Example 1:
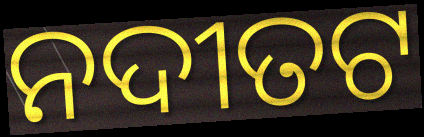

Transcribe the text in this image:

ନଦୀତଟ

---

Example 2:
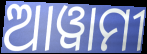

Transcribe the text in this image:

ଆୱାମୀ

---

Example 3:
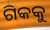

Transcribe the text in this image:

ଗିକକୁ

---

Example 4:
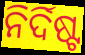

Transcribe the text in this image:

ନିର୍ଦିଷ୍ଟ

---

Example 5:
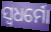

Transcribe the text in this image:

ସ୍ୱଧର୍ମୋ